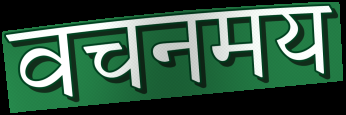
वचनमय